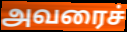
அவரைச்